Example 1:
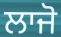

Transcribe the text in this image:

ਲਾਜੋ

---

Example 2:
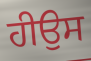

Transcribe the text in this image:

ਹੀਉਸ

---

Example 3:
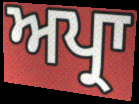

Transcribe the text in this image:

ਅਪ੍ਰਾ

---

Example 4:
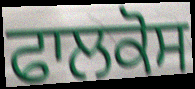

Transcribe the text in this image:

ਫਾਲਕੋਸ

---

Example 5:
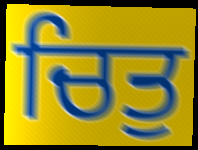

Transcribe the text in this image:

ਚਿਤੁ